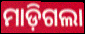
ମାଡ଼ିଗଲା